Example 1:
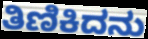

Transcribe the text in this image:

ತಿಣಿಕಿದನು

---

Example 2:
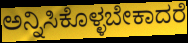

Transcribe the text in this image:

ಅನ್ನಿಸಿಕೊಳ್ಳಬೇಕಾದರೆ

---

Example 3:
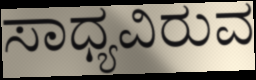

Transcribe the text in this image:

ಸಾಧ್ಯವಿರುವ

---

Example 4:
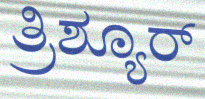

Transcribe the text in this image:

ತ್ರಿಶ್ಯೂರ್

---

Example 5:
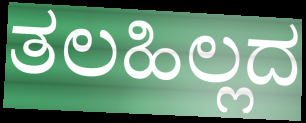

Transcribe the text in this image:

ತಲಹಿಲ್ಲದ